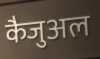
कैजुअल